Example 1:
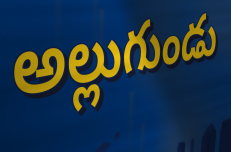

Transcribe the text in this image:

అల్లుగుండు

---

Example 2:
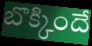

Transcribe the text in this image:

బొక్కిందే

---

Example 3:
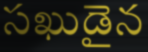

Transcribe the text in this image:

సఖుడైన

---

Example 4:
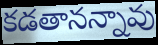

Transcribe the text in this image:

కడతానన్నావు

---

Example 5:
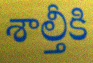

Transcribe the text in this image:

శాల్తీకి